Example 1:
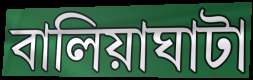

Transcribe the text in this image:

বালিয়াঘাটা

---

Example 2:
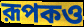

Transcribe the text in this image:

রূপকও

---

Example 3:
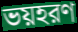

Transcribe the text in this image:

ভয়হরণ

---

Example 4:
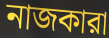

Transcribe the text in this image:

নাজকারা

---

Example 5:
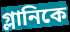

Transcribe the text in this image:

গ্লানিকে